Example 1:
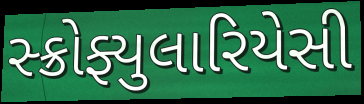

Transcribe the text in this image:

સ્ક્રોફ્યુલારિયેસી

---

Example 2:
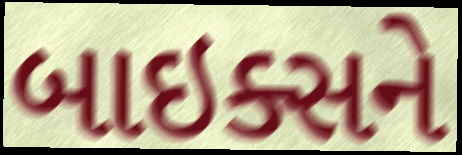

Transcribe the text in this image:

બાઇક્સને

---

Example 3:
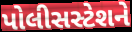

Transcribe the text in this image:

પોલીસસ્ટેશને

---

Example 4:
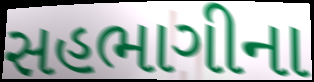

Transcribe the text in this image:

સહભાગીના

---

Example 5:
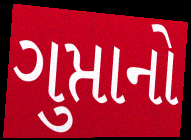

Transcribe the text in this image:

ગુપ્તાનો